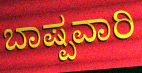
ಬಾಷ್ಪವಾರಿ